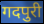
गदपुरी